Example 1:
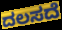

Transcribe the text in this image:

ದಲಸದೆ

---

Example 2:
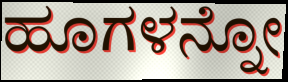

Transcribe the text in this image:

ಹೂಗಳನ್ನೋ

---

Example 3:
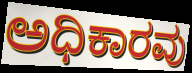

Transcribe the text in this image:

ಅಧಿಕಾರವು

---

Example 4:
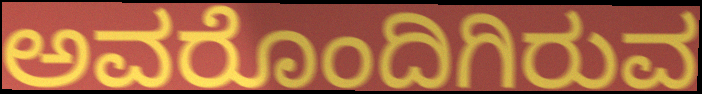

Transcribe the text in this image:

ಅವರೊಂದಿಗಿರುವ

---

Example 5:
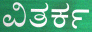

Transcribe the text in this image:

ವಿತರ್ಕ